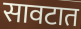
सावटात